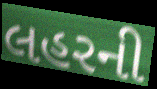
લહરની